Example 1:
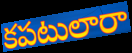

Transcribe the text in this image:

కపటులారా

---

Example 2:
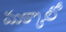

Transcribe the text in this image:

మక్కాలో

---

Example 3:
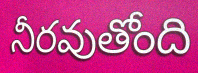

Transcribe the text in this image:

నీరవుతోంది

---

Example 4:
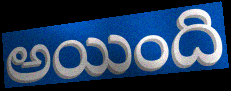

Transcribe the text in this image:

అయింది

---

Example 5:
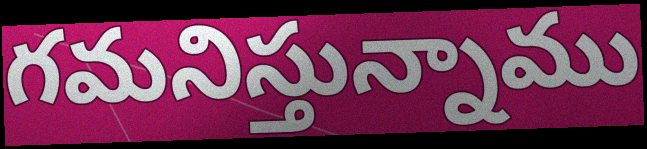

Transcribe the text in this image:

గమనిస్తున్నాము